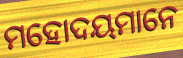
ମହୋଦୟମାନେ